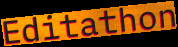
Editathon